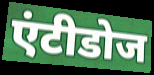
एंटीडोज